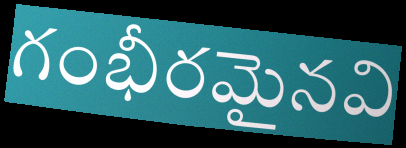
గంభీరమైనవి